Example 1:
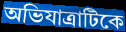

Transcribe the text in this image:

অভিযাত্রাটিকে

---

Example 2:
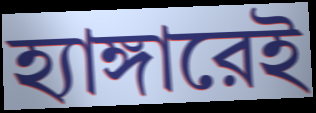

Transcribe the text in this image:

হ্যাঙ্গারেই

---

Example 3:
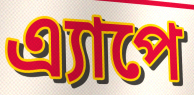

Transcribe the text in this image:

এ্যাপে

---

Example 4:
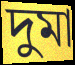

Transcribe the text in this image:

দুমা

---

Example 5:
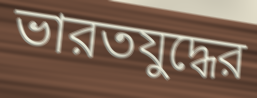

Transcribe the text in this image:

ভারতযুদ্ধের